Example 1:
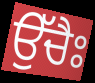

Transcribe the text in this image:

ਉੱਚੈਃ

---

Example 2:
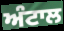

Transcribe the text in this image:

ਅੰਟਾਲ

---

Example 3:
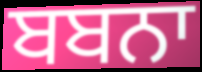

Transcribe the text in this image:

ਬਬਨਾ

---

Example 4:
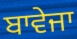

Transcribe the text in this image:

ਬਾਵੇਜਾ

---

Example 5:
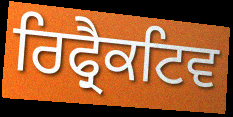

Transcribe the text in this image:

ਰਿਫ੍ਰੈਕਟਿਵ